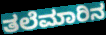
ತಲೆಮಾರಿನ